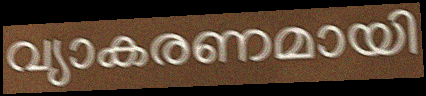
വ്യാകരണമായി